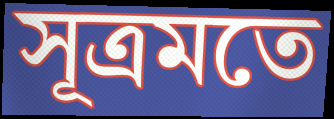
সূত্রমতে